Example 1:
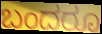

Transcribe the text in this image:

ಬಂದರೂ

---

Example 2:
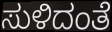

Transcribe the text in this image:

ಸುಳಿದಂತೆ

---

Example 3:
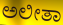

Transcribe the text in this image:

ಅಲೀತಾ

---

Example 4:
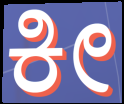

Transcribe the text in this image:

ಕೀ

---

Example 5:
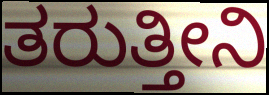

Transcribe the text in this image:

ತರುತ್ತೀನಿ